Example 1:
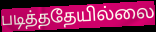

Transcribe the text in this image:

படித்ததேயில்லை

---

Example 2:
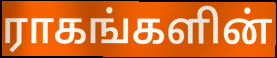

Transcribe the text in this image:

ராகங்களின்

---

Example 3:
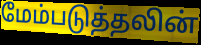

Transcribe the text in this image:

மேம்படுத்தலின்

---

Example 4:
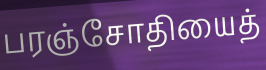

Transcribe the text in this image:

பரஞ்சோதியைத்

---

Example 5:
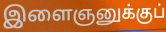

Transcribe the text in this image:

இளைஞனுக்குப்